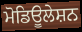
ਮੋਡਿਊਲੇਸ਼ਨ